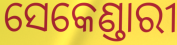
ସେକେଣ୍ଡାରୀ